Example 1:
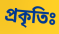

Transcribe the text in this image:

প্রকৃতিঃ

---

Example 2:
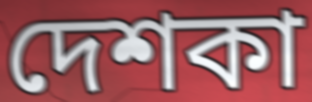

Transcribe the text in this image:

দেশকা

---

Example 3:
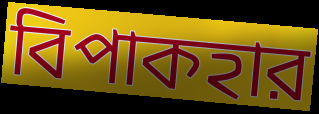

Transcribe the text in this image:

বিপাকহার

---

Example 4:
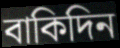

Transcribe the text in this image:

বাকিদিন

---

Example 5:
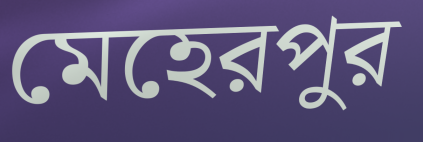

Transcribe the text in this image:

মেহেরপুর